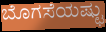
ಬೊಗಸೆಯಷ್ಟು